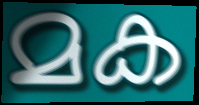
മക